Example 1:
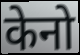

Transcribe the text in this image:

केनो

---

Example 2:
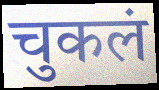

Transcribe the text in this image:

चुकलं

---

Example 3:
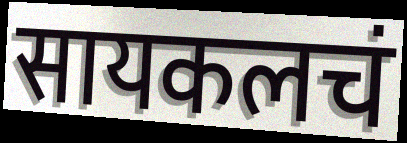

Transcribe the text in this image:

सायकलचं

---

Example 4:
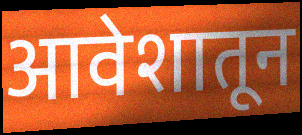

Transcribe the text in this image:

आवेशातून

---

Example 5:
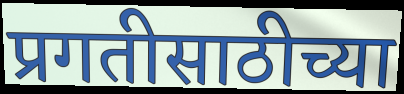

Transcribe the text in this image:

प्रगतीसाठीच्या